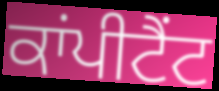
ਕਾਂਪੀਟੈਂਟ